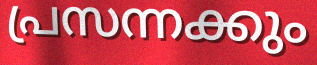
പ്രസന്നക്കും